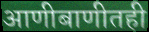
आणीबाणीतही